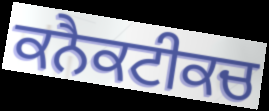
ਕਨੈਕਟੀਕਚ